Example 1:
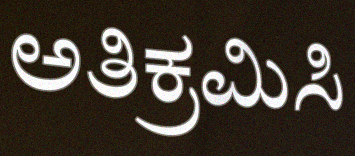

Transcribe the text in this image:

ಅತಿಕ್ರಮಿಸಿ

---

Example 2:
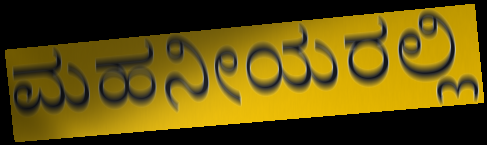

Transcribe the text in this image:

ಮಹನೀಯರಲ್ಲಿ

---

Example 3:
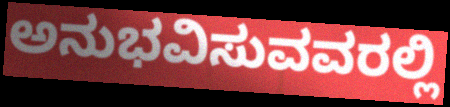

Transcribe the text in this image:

ಅನುಭವಿಸುವವರಲ್ಲಿ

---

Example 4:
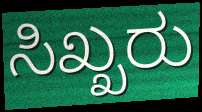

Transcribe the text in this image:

ಸಿಖ್ಖರು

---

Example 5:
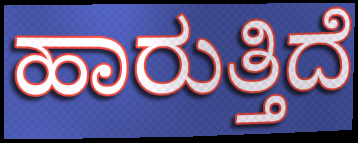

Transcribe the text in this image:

ಹಾರುತ್ತಿದೆ